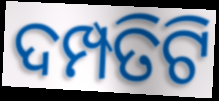
ଦମ୍ପତିଟି